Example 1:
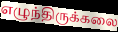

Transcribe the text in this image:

எழுந்திருக்கலை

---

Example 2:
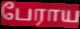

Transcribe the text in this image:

பேராய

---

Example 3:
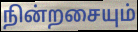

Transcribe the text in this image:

நின்றசையும்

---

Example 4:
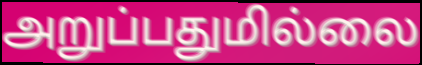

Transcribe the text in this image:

அறுப்பதுமில்லை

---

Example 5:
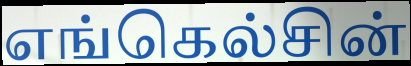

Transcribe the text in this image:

எங்கெல்சின்